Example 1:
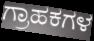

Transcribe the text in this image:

ಗ್ರಾಹಕಗಳ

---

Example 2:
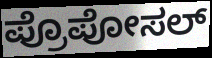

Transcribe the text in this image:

ಪ್ರೊಪೋಸಲ್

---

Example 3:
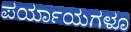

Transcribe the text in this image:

ಪರ್ಯಾಯಗಳೂ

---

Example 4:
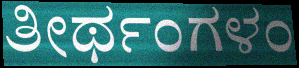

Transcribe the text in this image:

ತೀರ್ಥಂಗಳಂ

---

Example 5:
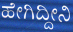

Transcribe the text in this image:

ಹೇಗಿದ್ದೀನಿ